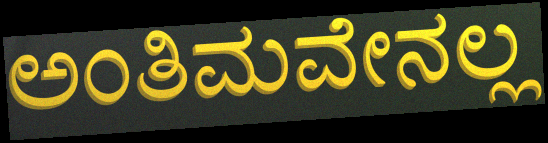
ಅಂತಿಮವೇನಲ್ಲ